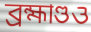
ব্রহ্মাণ্ডও